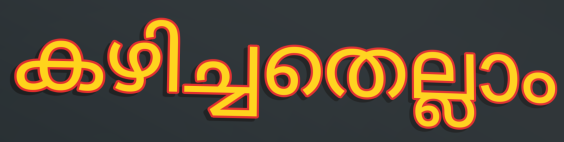
കഴിച്ചതെല്ലാം